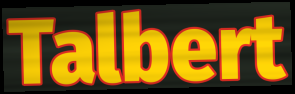
Talbert